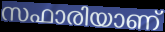
സഫാരിയാണ്